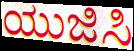
ಯುಜಿಸಿ